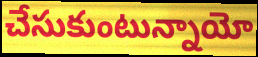
చేసుకుంటున్నాయో